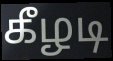
கீழடி